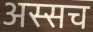
अस्सच